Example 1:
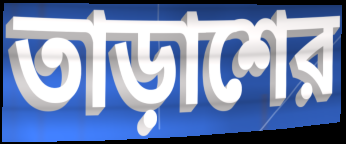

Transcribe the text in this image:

তাড়াশের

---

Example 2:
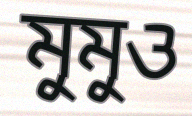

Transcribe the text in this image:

মুমুও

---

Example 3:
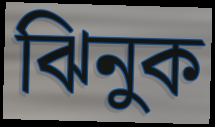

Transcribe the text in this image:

ঝিনুক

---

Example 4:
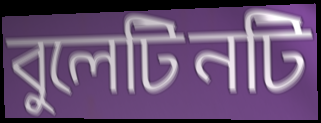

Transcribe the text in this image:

বুলেটিনটি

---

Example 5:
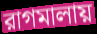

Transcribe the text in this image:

রাগমালায়